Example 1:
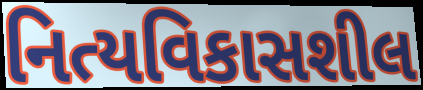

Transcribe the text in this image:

નિત્યવિકાસશીલ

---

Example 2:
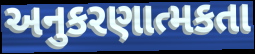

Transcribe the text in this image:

અનુકરણાત્મકતા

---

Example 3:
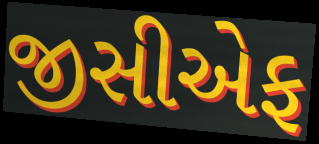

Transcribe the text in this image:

જીસીએફ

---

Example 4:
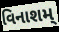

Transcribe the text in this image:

વિનાશમ્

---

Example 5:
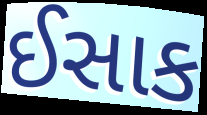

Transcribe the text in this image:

ઈસાક